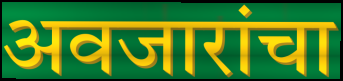
अवजारांचा